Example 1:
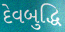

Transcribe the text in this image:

દેવબુદ્ધિ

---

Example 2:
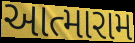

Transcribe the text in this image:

આત્મારામ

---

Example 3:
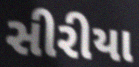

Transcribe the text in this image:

સીરીયા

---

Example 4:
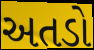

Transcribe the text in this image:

અતડો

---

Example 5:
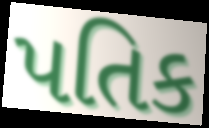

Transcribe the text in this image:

પતિક